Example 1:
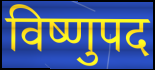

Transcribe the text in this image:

विष्णुपद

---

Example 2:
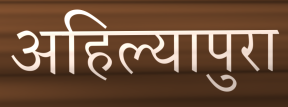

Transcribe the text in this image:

अहिल्यापुरा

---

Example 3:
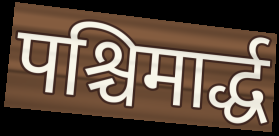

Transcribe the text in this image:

पश्चिमार्द्ध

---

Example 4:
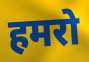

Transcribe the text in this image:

हमरो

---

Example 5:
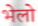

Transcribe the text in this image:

भेलो